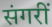
संगरीं